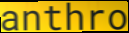
anthro